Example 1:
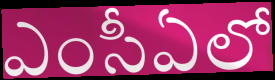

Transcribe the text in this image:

ఎంసీఏలో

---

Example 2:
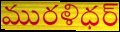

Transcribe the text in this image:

మురళిధర్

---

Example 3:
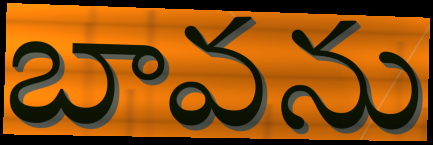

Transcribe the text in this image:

బావను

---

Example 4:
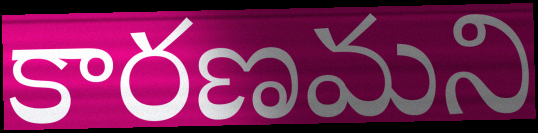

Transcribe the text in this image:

కారణమని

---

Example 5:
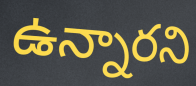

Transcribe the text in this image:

ఉన్నారని